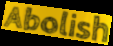
Abolish